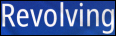
Revolving